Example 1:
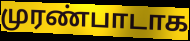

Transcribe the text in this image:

முரண்பாடாக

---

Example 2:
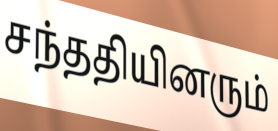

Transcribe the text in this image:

சந்ததியினரும்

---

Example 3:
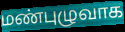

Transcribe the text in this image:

மண்புழுவாக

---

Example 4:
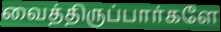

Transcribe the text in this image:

வைத்திருப்பார்களே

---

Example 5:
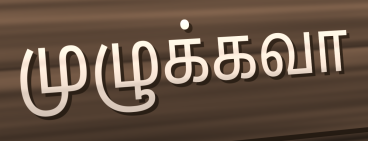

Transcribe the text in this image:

முழுக்கவா